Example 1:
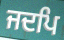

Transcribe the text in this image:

ਜਦਪਿ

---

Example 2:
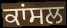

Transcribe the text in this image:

ਕਾਂਸਲ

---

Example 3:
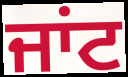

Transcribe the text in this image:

ਜਾਂਟ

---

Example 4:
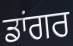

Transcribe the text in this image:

ਡਾਂਗਰ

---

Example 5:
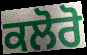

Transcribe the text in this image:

ਕਲੋਰੋ